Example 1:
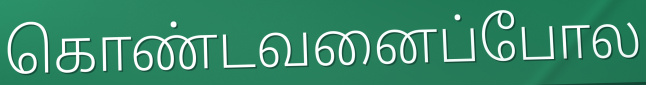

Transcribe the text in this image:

கொண்டவனைப்போல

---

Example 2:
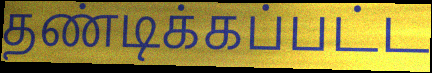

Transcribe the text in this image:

தண்டிக்கப்பட்ட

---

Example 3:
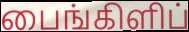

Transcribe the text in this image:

பைங்கிளிப்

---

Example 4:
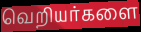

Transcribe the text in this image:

வெறியர்களை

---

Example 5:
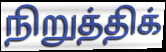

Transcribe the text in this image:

நிறுத்திக்